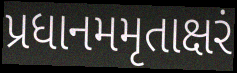
પ્રધાનમમૃતાક્ષરં